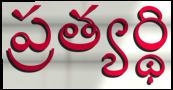
ప్రత్యర్థి